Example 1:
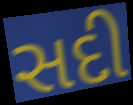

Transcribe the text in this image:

સદી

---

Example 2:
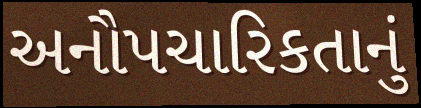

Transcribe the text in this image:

અનૌપચારિકતાનું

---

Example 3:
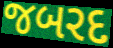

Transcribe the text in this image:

જબરદ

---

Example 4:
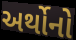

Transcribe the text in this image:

અર્થોનો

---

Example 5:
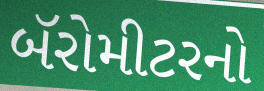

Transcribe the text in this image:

બૅરોમીટરનો